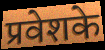
प्रवेशके